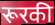
रूरकी